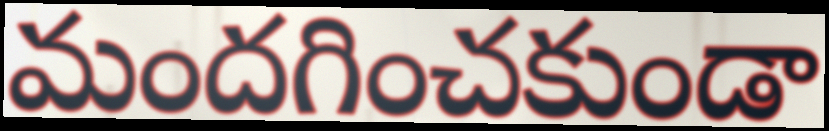
మందగించకుండా